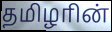
தமிழரின்